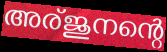
അര്ജുനന്റെ